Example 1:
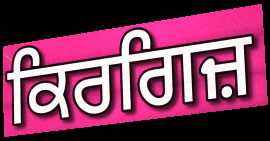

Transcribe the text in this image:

ਕਿਰਗਿਜ਼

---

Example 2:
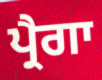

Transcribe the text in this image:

ਪ੍ਰੈਗਾ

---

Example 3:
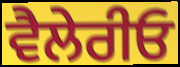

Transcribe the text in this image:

ਵੈਲੇਰੀਓ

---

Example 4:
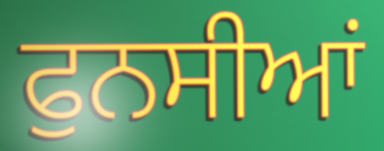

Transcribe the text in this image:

ਫੁਨਸੀਆਂ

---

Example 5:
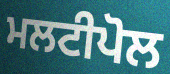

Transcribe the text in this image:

ਮਲਟੀਪੋਲ